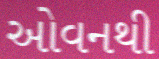
ઓવનથી